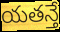
యతన్తే